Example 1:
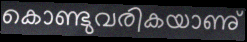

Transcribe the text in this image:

കൊണ്ടുവരികയാണു്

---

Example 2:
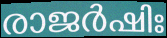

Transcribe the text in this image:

രാജർഷിഃ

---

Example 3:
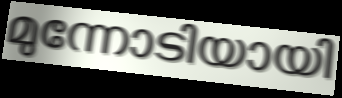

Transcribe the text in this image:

മുന്നോടിയായി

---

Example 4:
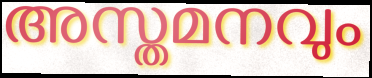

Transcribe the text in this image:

അസ്തമനവും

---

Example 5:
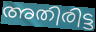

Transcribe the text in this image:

അതിരിട്ട